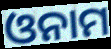
ଓନାମ